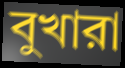
বুখারা